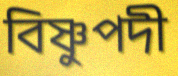
বিষ্ণুপদী